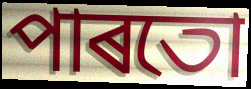
পাৰতো